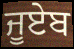
ਜੂਏਬ